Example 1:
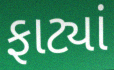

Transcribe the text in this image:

ફાટ્યાં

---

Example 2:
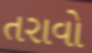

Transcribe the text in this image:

તરાવો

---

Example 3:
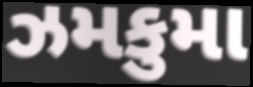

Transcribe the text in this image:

ઝમકુમા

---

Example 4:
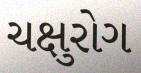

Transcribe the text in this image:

ચક્ષુરોગ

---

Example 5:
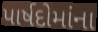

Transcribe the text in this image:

પાર્ષદોમાંના